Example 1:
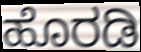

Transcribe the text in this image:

ಹೊರಡಿ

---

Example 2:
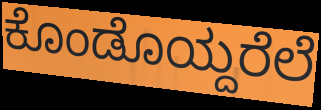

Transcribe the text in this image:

ಕೊಂಡೊಯ್ದರೆಲೆ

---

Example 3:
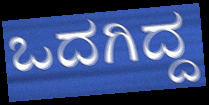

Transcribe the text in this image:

ಒದಗಿದ್ದ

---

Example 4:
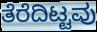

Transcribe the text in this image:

ತೆರೆದಿಟ್ಟವು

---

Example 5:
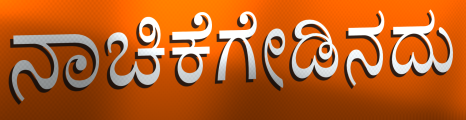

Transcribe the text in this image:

ನಾಚಿಕೆಗೇಡಿನದು